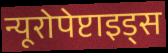
न्यूरोपेप्टाइड्स